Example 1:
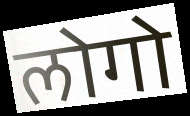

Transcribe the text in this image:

लोगो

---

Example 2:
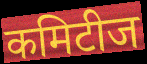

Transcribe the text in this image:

कमिटीज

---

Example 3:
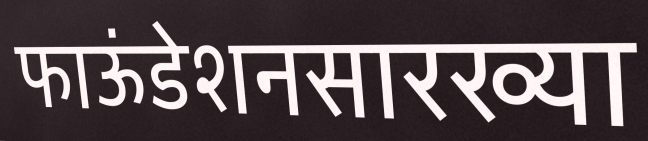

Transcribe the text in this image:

फाऊंडेशनसारख्या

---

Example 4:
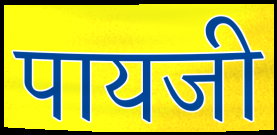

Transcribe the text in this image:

पायजी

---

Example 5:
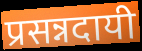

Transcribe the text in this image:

प्रसन्नदायी